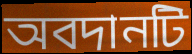
অবদানটি